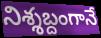
నిశ్శబ్దంగానే